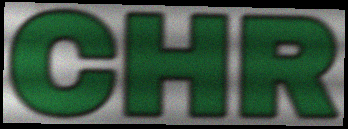
CHR